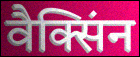
वैक्सिंन